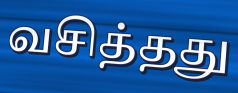
வசித்தது